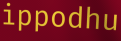
ippodhu